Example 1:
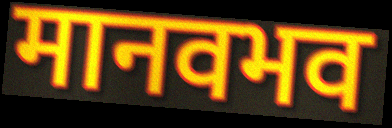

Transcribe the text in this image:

मानवभव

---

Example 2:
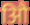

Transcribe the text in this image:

औि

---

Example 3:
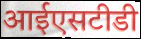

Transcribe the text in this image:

आईएसटीडी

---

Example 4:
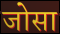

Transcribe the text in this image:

जोसा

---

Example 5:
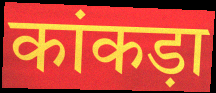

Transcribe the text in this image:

कांकड़ा